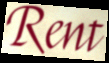
Rent